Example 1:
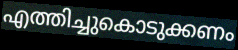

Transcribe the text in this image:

എത്തിച്ചുകൊടുക്കണം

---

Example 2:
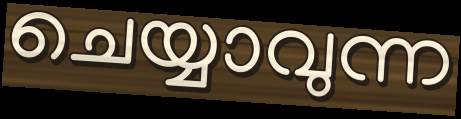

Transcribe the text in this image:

ചെയ്യാവുന്ന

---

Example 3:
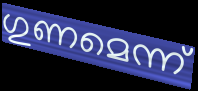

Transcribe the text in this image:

ഗുണമെന്ന്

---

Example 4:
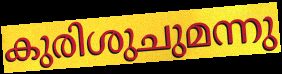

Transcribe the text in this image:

കുരിശുചുമന്നു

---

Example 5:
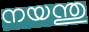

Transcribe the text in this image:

നയന്തു